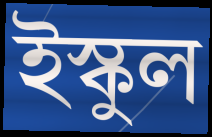
ইস্কুল